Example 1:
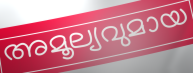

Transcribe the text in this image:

അമൂല്യവുമായ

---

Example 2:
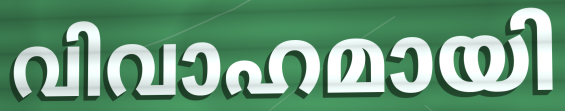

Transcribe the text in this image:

വിവാഹമായി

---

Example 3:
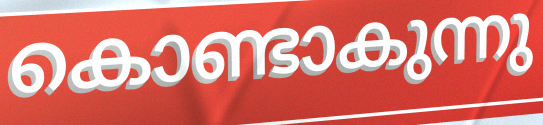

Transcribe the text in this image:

കൊണ്ടാകുന്നു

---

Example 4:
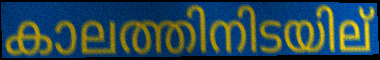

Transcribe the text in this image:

കാലത്തിനിടയില്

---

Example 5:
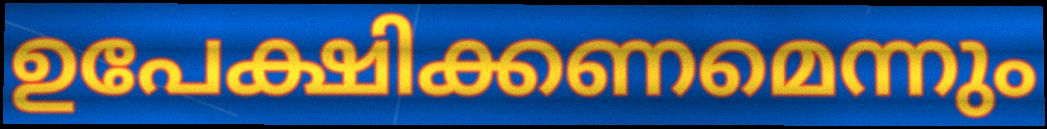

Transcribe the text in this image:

ഉപേക്ഷിക്കണമെന്നും